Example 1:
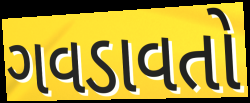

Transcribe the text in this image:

ગવડાવતો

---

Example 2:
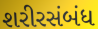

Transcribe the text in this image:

શરીરસંબંધ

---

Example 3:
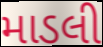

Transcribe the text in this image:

માડલી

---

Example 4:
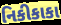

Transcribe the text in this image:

નિકીકાકા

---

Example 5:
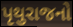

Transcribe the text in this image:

પૃથુરાજનો